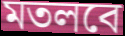
মতলবে